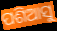
ପଶିଆସୁ